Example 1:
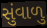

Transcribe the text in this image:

સુંવાળુ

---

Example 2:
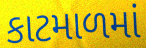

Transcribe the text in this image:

કાટમાળમાં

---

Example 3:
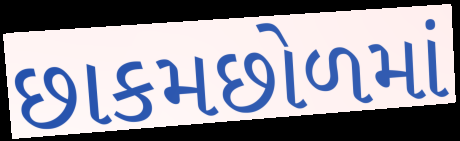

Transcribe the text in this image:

છાકમછોળમાં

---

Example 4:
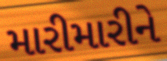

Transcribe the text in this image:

મારીમારીને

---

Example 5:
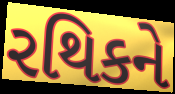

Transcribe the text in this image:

રથિકને